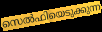
സെൽഫിയെടുക്കുന്ന